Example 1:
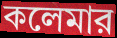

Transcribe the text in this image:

কলেমার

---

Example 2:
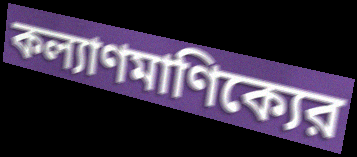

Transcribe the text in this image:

কল্যাণমাণিক্যের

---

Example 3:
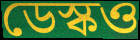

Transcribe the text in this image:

ডেস্কও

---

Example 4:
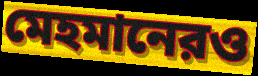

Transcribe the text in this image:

মেহমানেরও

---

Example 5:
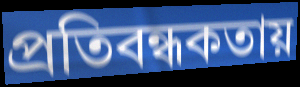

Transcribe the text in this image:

প্রতিবন্ধকতায়